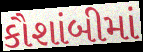
કૌશાંબીમાં